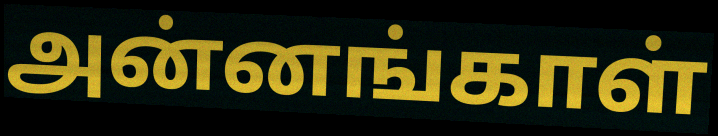
அன்னங்காள்